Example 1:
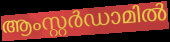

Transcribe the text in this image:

ആംസ്റ്റർഡാമിൽ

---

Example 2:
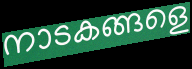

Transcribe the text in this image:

നാടകങ്ങളെ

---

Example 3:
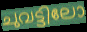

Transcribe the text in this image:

ചുവട്ടിലോ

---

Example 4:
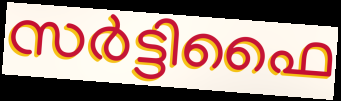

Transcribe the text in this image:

സർട്ടിഫൈ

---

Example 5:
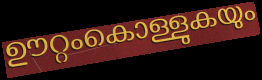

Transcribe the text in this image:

ഊറ്റംകൊള്ളുകയും